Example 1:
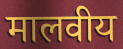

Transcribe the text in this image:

मालवीय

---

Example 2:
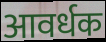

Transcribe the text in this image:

आवर्धक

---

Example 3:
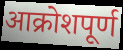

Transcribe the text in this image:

आक्रोशपूर्ण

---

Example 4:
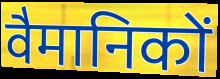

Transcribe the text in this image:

वैमानिकों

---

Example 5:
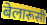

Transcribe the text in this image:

बेलारूसी